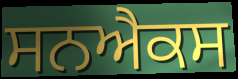
ਸਨਐਕਸ